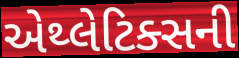
એથ્લેટિક્સની